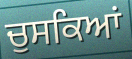
ਚੁਸਕਿਆਂ